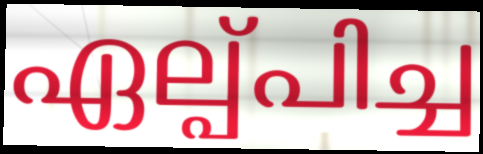
ഏല്പ്പിച്ച